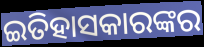
ଇତିହାସକାରଙ୍କର